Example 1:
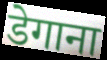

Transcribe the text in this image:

डेगाना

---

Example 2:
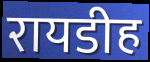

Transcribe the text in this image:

रायडीह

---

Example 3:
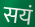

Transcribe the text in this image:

सयं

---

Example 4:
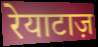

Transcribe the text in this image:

रेयाटाज़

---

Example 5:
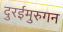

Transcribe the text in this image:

दुरईमुरुगन